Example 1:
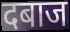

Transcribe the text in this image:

दबाज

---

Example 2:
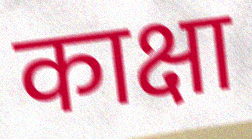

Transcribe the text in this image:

काक्षा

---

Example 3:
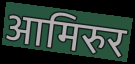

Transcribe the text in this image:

आमिरुर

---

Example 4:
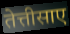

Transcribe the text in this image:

तेत्तीसाए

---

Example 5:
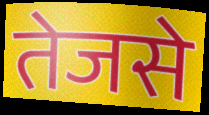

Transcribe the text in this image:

तेजसे